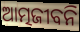
ଆତ୍ମଜୀବନି